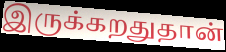
இருக்கறதுதான்